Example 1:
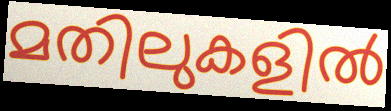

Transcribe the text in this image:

മതിലുകളിൽ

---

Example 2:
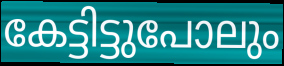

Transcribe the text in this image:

കേട്ടിട്ടുപോലും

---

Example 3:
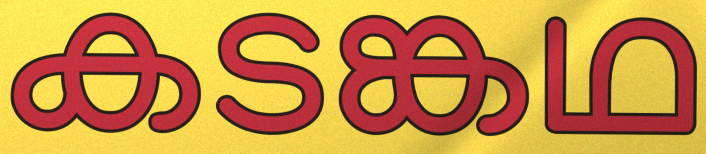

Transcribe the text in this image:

കടങ്കഥ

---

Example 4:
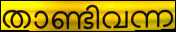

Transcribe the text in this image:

താണ്ടിവന്ന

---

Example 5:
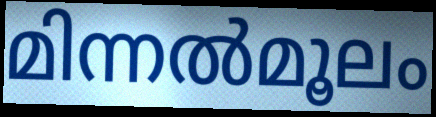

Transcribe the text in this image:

മിന്നൽമൂലം